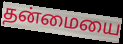
தன்மையை